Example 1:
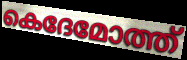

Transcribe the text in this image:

കെദേമോത്ത്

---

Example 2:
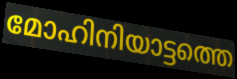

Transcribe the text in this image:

മോഹിനിയാട്ടത്തെ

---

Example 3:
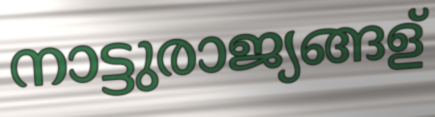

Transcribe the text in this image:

നാട്ടുരാജ്യങ്ങള്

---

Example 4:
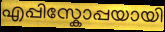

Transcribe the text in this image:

എപ്പിസ്കോപ്പയായി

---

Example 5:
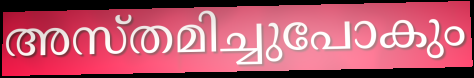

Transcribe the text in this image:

അസ്തമിച്ചുപോകും